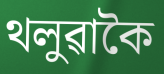
থলুৱাকৈ